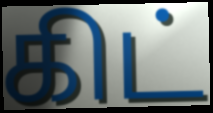
கிட்